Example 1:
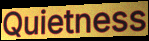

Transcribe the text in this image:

Quietness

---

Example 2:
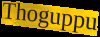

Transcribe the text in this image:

Thoguppu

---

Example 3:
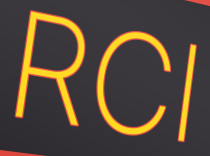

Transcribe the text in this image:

RCl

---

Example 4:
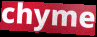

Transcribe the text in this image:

chyme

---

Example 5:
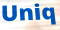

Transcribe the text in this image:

Uniq